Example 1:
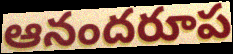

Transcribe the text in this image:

ఆనందరూప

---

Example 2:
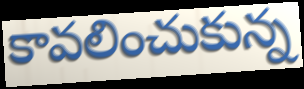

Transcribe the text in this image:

కావలించుకున్న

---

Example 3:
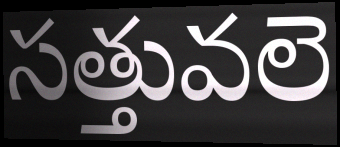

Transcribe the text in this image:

సత్తువలె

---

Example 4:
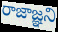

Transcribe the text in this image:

రాజాజ్ఞని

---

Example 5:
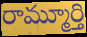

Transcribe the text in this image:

రామ్మూర్తి